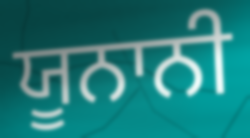
ਯੂਨਾਨੀ